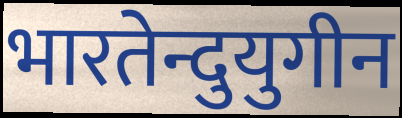
भारतेन्दुयुगीन